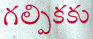
గల్పికకు